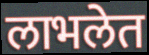
लाभलेत